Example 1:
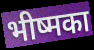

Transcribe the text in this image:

भीष्मका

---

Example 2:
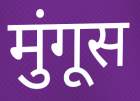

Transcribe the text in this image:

मुंगूस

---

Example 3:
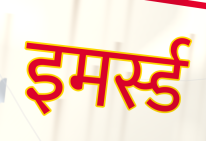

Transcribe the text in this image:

इमर्स्ड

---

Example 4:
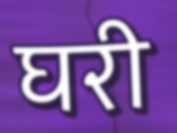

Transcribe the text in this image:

घरी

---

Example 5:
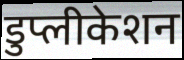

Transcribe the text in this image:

डुप्लीकेशन